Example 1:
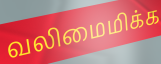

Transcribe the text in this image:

வலிமைமிக்க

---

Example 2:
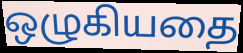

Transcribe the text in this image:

ஒழுகியதை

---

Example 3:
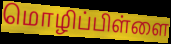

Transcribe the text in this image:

மொழிப்பிள்ளை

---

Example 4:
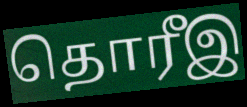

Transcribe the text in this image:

தொரீஇ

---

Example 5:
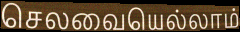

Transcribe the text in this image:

செலவையெல்லாம்